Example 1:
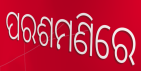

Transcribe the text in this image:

ପରଶମଣିରେ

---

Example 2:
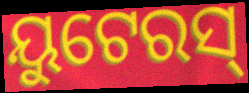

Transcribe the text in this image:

ୟୁଟେରସ୍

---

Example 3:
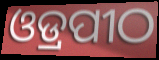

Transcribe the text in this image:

ଓଡ୍ରପୀଠ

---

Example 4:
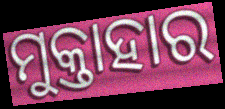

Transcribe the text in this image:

ମୁକ୍ତାହାର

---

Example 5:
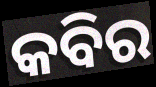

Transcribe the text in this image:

କବିର